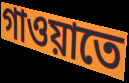
গাওয়াতে